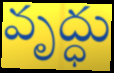
వృద్ధు